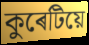
কুৰেটিয়ে